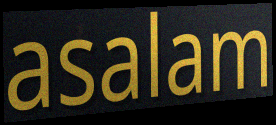
asalam